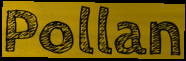
Pollan